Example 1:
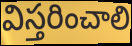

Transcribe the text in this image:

విస్తరించాలి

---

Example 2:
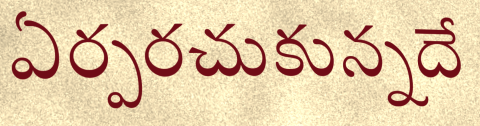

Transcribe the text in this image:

ఏర్పరచుకున్నదే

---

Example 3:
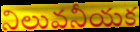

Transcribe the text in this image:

నిలువనీయక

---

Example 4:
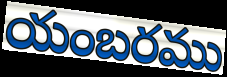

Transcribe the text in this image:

యంబరము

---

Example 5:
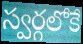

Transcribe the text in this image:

స్వర్గలోకే